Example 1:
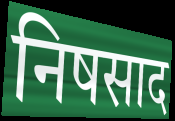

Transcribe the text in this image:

निषसाद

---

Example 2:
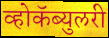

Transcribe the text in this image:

व्होकॅब्युलरी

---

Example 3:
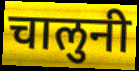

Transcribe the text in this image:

चालुनी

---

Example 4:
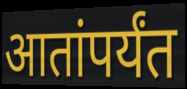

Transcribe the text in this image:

आतांपर्यंत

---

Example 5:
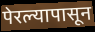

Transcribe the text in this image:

पेरल्यापासून